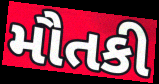
મૌતકી